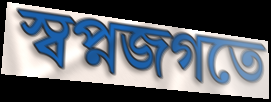
স্বপ্নজগতে